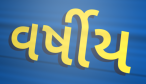
વર્ષીય